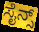
ಸೈನ್ಸ್